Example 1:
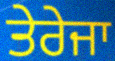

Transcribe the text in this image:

ਤੇਰੇਜਾ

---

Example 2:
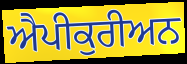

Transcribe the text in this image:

ਐਪੀਕੁਰੀਅਨ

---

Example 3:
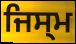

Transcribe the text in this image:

ਜਿਸ੍ਮ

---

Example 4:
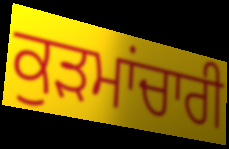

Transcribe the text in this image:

ਕੁੜਮਾਂਚਾਰੀ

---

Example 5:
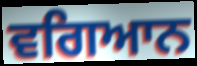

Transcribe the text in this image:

ਵਗਿਆਨ